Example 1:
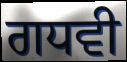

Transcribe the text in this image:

ਗਧਵੀ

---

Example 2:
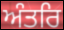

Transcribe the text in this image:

ਅੰਤਰਿ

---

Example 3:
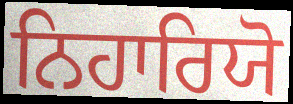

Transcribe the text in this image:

ਨਿਹਾਰਿਯੋ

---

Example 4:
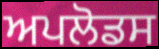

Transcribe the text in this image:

ਅਪਲੋਡਸ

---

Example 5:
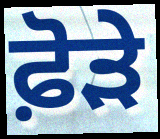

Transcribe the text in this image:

ਫ਼ੋੜੇ